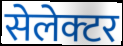
सेलेक्‍टर